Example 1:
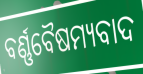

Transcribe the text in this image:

ବର୍ଣ୍ଣବୈଷମ୍ୟବାଦ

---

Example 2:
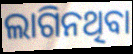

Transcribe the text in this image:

ଲାଗିନଥିବା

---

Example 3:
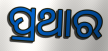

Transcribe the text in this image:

ପ୍ରଥାର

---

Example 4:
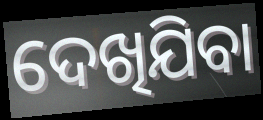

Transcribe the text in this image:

ଦେଖିଯିବା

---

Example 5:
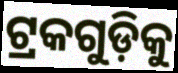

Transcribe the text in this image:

ଟ୍ରକଗୁଡ଼ିକୁ